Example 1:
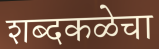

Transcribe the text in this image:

शब्दकळेचा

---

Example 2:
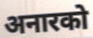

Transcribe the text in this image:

अनारको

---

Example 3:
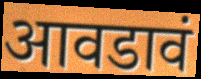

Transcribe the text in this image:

आवडावं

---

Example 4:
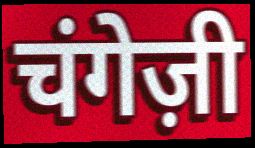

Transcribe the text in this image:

चंगेज़ी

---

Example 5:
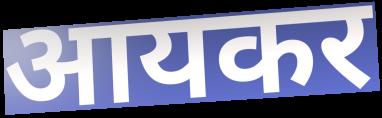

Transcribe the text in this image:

आयकर